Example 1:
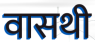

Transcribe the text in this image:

वासथी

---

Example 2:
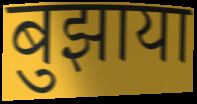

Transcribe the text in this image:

बुझाया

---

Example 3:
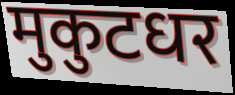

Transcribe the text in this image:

मुकुटधर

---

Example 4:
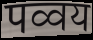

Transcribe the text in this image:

पव्वय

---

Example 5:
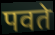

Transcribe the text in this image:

पवते